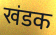
खंडक